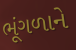
ભૂંગળાને